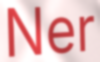
Ner